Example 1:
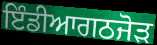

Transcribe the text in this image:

ਇੰਡੀਆਗਠਜੋੜ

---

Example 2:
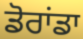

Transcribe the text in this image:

ਡੋਰਾਂਡਾ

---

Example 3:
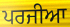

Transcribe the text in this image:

ਪਰਜੀਆ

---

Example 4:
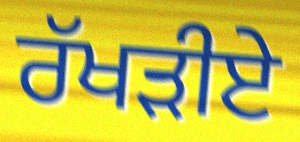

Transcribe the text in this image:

ਰੱਖੜੀਏ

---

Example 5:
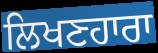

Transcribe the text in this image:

ਲਿਖਣਹਾਰਾ